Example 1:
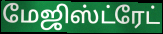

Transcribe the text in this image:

மேஜிஸ்ட்ரேட்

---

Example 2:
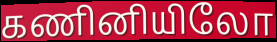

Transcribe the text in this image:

கணினியிலோ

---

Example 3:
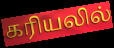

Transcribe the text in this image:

கரியலில்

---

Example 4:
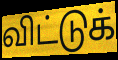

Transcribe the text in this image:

விட்டுக்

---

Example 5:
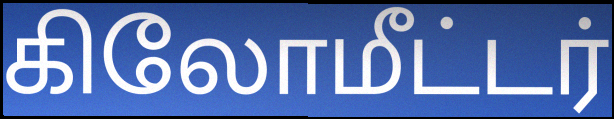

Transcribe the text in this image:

கிலோமீட்டர்